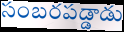
సంబరపడ్డాడు